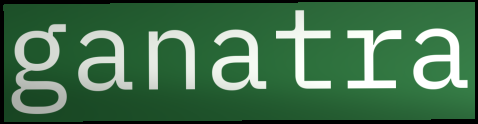
ganatra